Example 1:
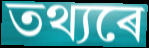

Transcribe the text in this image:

তথ্যৰে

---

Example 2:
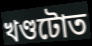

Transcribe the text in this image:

খণ্ডটোত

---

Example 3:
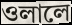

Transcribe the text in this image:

ওলালে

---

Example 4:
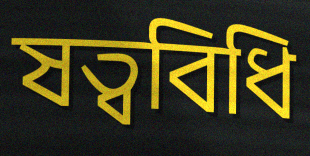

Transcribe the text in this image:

ষত্ববিধি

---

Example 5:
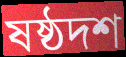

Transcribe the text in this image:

ষষ্ঠদশ